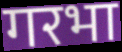
गरभा